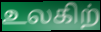
உலகிற்